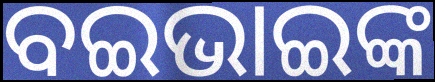
ବଇଭାଇଙ୍କ